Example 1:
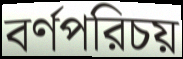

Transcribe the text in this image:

বর্ণপরিচয়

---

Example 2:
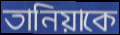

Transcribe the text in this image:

তানিয়াকে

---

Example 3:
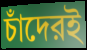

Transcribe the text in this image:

চাঁদেরই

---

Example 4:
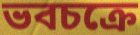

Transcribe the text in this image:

ভবচক্রে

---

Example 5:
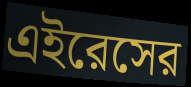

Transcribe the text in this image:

এইরেসের